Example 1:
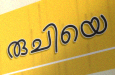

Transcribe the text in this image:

രുചിയെ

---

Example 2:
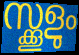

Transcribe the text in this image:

സ്ക്കൂളും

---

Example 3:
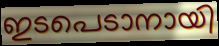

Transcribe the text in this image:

ഇടപെടാനായി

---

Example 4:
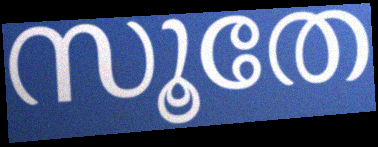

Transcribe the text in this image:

സൂതേ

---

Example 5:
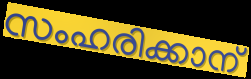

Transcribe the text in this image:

സംഹരിക്കാന്